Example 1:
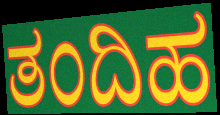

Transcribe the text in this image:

ತಂದಿಹ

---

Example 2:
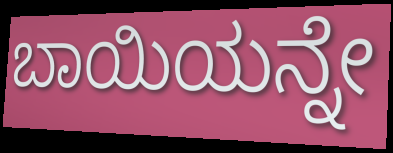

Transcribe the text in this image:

ಬಾಯಿಯನ್ನೇ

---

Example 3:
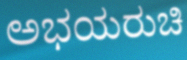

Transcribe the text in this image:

ಅಭಯರುಚಿ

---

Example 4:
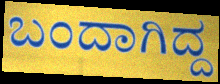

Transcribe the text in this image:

ಬಂದಾಗಿದ್ದ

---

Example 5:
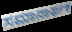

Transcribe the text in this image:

ಸಮಾನಾರ್ಥಕ